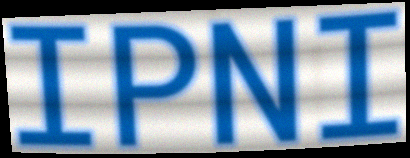
IPNI